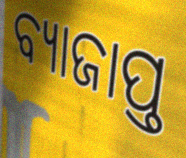
ବ୍ୟାଜାପ୍ତ